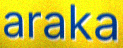
araka